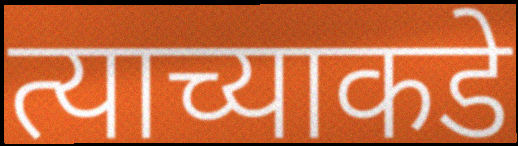
त्याच्याकडे